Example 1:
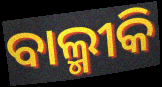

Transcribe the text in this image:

ବାଲ୍ମୀକି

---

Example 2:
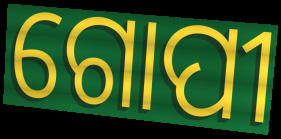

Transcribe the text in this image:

ଗୋପୀ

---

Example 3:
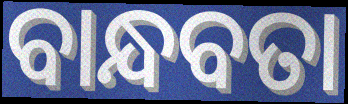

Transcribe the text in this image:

ବାନ୍ଧବତା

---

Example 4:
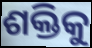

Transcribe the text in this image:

ଶକ୍ତିକୁ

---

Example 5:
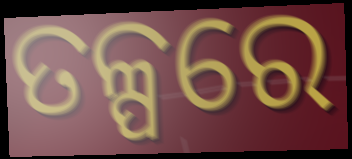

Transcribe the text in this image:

ତଳ୍ପରେ